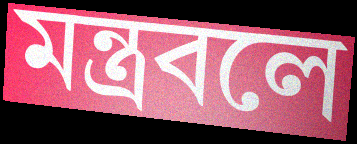
মন্ত্রবলে